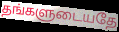
தங்களுடையதே